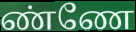
ண்ணே